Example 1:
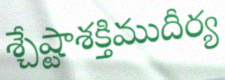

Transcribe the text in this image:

శ్చేష్టాశక్తిముదీర్య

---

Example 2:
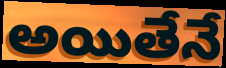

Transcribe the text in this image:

అయితేనే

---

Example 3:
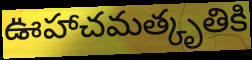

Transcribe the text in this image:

ఊహాచమత్కృతికి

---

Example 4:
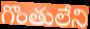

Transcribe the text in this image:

గొంతులేని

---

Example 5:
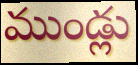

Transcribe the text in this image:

ముండ్లు